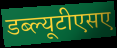
डब्ल्यूटीएसए